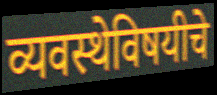
व्यवस्थेविषयीचे